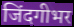
जिंदगीभर